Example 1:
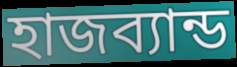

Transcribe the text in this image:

হাজব্যান্ড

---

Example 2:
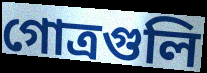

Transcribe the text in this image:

গোত্রগুলি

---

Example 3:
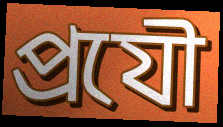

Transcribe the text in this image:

প্রযৌ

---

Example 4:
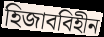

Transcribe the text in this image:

হিজাববিহীন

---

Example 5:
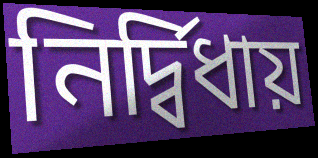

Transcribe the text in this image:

নির্দ্বিধায়